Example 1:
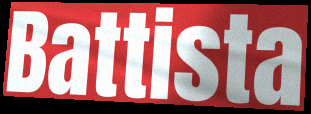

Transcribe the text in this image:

Battista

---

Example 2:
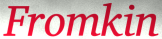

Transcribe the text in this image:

Fromkin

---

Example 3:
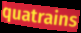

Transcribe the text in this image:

quatrains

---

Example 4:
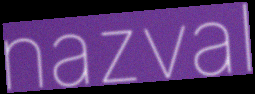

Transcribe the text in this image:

nazval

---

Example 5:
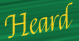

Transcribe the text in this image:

Heard